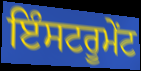
ਇੰਸਟਰੂਮੇਂਟ